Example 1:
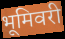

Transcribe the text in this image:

भूमिवरी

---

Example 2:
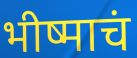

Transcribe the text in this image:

भीष्माचं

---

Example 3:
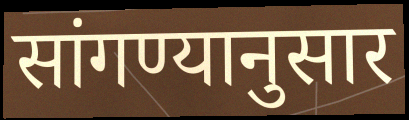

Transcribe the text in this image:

सांगण्यानुसार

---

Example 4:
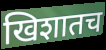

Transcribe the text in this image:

खिशातच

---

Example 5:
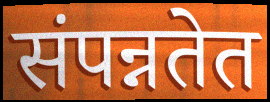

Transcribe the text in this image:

संपन्नतेत